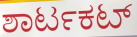
ಶಾರ್ಟಕಟ್